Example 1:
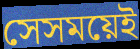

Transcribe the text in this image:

সেসময়েই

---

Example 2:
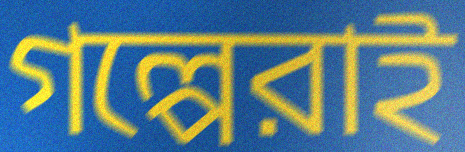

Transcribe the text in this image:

গল্পেরাই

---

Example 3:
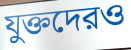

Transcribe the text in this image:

যুক্তদেরও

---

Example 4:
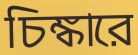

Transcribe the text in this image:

চিঙ্কারে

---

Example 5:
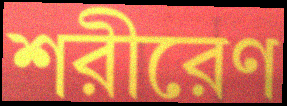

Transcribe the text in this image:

শরীরেণ